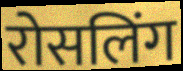
रोसलिंग